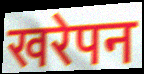
खरेपन